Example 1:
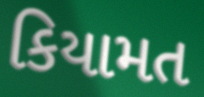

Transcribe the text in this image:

કિયામત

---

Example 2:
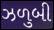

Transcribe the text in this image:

ઝળુબી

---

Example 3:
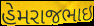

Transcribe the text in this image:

હેમરાજભાઇ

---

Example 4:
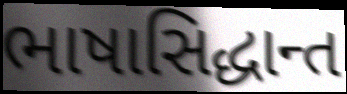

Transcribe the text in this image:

ભાષાસિદ્ધાન્ત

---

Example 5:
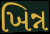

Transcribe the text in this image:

ખિન્ન